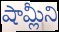
షామ్లీని